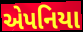
એપનિયા